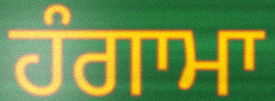
ਹੰਗਾਮਾ